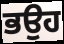
ਭਉਹ